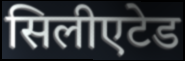
सिलीएटेड